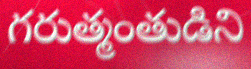
గరుత్మంతుడిని